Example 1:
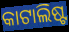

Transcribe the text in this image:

କାଟାଲିଷ୍ଟ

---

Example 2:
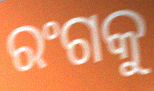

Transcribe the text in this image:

ରଂଗକୁ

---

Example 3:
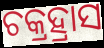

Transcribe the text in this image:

ଚକ୍ରହ୍ରାସ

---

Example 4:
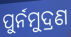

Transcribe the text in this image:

ପୁର୍ନମୁଦ୍ରଣ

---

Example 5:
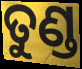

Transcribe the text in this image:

ତୁଣ୍ଡ